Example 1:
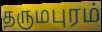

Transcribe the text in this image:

தருமபுரம்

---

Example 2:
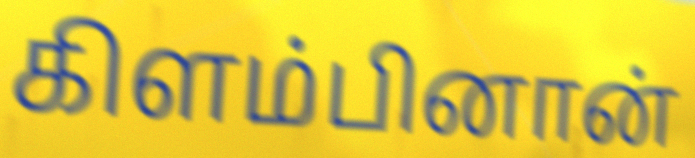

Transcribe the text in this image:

கிளம்பினான்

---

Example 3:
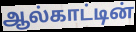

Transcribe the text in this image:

ஆல்காட்டின்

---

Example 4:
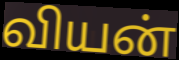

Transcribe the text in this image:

வியன்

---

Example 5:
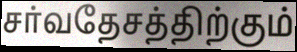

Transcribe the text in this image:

சர்வதேசத்திற்கும்